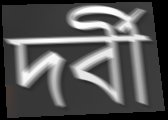
দর্বী